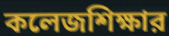
কলেজশিক্ষার